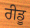
ਰੀਡੂ